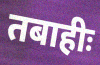
तबाहीः